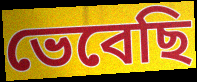
ভেবেছি